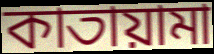
কাতায়ামা